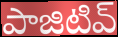
పాజిటివ్